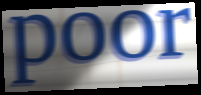
poor